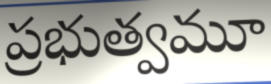
ప్రభుత్వమూ